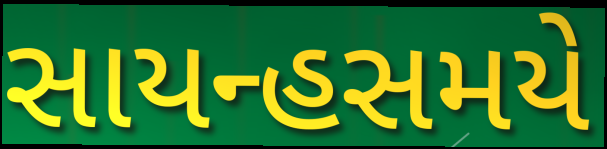
સાયન્હસમયે